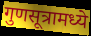
गुणसूत्रामध्ये